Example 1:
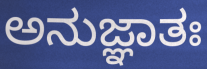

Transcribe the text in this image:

ಅನುಜ್ಞಾತಃ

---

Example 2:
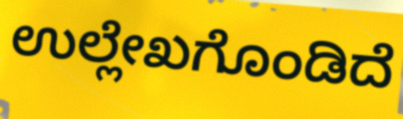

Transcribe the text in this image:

ಉಲ್ಲೇಖಗೊಂಡಿದೆ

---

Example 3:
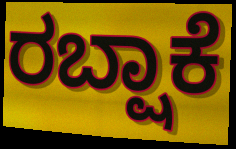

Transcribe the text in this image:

ರಬ್ಷಾಕೆ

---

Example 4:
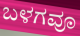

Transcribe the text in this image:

ಬಳಗವೂ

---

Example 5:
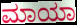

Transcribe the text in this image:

ಮಾಯಾ